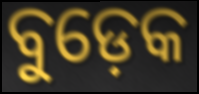
ବୁଡ଼େକ